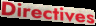
Directives